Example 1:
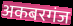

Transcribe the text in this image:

अकबरगंज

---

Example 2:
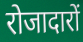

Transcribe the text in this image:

रोजादारों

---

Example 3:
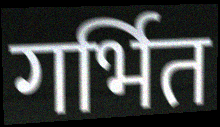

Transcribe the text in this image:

गर्भित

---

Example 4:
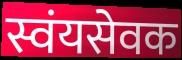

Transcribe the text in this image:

स्वंयसेवक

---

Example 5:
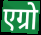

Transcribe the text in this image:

एग्रो